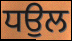
ਧਉਲ